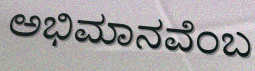
ಅಭಿಮಾನವೆಂಬ